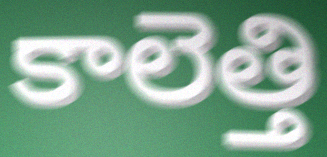
కాలెత్తి